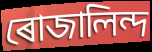
ৰোজালিন্দ